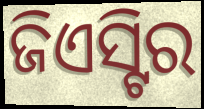
ଜିଏସ୍ଟିର